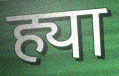
ह्या